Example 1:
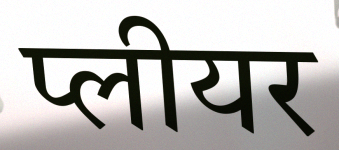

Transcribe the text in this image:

प्लीयर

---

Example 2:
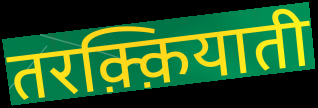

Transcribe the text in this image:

तरक़्क़ियाती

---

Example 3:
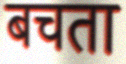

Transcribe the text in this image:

बचता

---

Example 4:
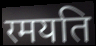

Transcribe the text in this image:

रमयति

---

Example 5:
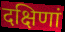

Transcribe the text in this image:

दक्षिणां